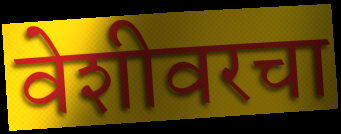
वेशीवरचा